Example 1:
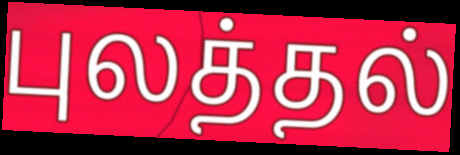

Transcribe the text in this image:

புலத்தல்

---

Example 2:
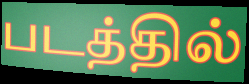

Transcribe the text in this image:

படத்தில்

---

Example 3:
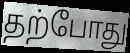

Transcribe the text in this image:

தற்போது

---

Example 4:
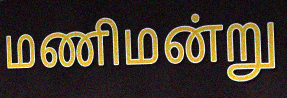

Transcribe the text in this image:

மணிமன்று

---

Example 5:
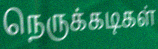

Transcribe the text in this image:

நெருக்கடிகள்